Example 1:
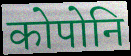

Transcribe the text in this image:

कोपोनि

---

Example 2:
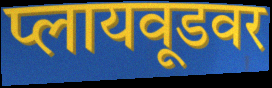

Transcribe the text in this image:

प्लायवूडवर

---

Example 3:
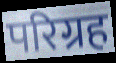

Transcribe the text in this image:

परिग्रह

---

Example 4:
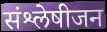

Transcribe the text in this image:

संश्लेषीजन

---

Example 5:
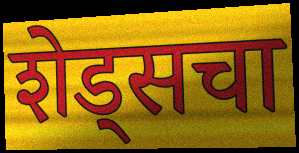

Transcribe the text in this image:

शेड्सचा